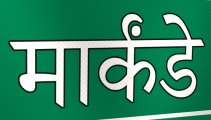
मार्कंडे